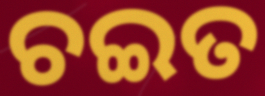
ଚଇତ